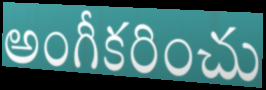
అంగీకరించు